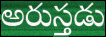
అరుస్తడు